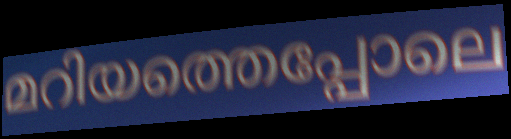
മറിയത്തെപ്പോലെ